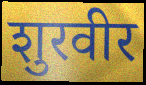
शुरवीर